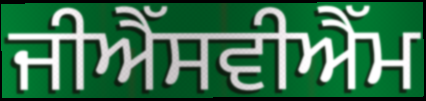
ਜੀਐੱਸਵੀਐੱਮ